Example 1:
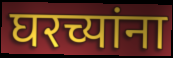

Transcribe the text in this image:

घरच्‍यांना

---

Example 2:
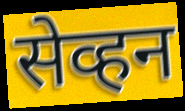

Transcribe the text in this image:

सेव्हन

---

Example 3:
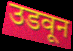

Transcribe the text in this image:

उडवून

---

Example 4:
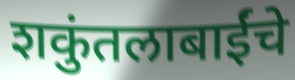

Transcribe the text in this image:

शकुंतलाबाईंचे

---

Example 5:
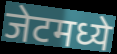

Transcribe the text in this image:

जेटमध्ये